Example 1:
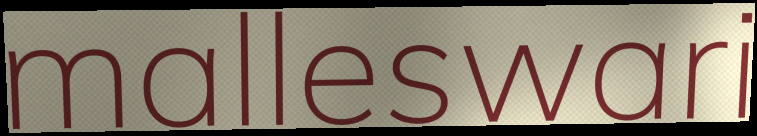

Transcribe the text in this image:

malleswari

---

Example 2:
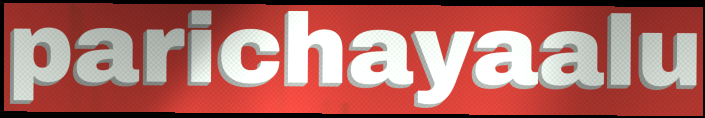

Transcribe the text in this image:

parichayaalu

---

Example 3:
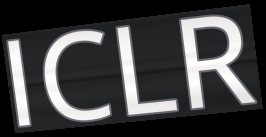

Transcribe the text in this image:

ICLR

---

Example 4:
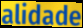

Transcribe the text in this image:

alidade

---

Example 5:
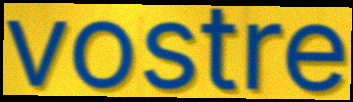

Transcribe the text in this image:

vostre